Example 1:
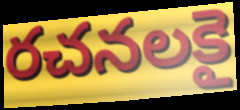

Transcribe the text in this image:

రచనలకై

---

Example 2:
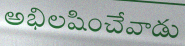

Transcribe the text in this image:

అభిలషించేవాడు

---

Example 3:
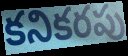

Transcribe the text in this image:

కనికరపు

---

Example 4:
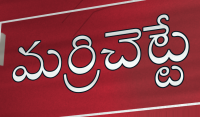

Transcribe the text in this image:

మర్రిచెట్టే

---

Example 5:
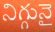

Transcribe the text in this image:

నిగ్గునై